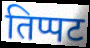
तिप्पट